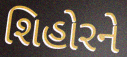
શિહોરને